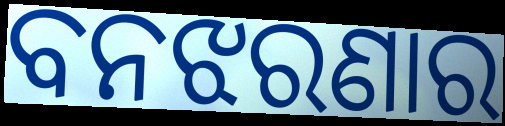
ବନଝରଣାର